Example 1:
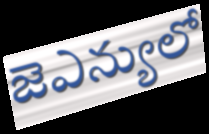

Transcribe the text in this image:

జెఎన్యులో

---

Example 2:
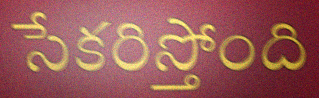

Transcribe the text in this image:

సేకరిస్తోంది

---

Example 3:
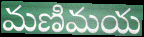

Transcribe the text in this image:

మణిమయ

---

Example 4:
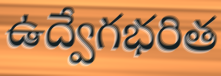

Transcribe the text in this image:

ఉద్వేగభరిత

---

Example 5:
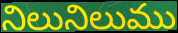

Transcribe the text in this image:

నిలునిలుము